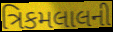
ત્રિકમલાલની